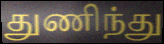
துணிந்து